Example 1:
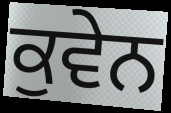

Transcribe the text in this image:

ਕੁਵੇਨ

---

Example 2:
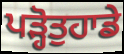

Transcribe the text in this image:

ਪੜ੍ਹੋਤੁਹਾਡੇ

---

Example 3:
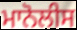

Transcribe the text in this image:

ਮਾਨੋਲੀਸ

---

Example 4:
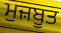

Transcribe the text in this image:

ਮੁਜ਼ਬੂਤ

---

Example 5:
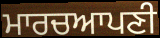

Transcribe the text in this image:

ਮਾਰਚਆਪਣੀ